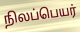
நிலப்பெயர்